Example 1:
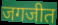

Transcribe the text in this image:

जगजीत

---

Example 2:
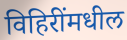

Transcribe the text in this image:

विहिरींमधील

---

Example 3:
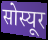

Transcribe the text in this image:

सोस्यूर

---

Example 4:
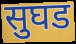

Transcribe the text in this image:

सुघड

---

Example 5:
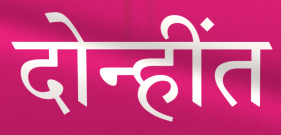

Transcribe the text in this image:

दोन्हींत